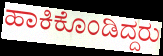
ಹಾಕಿಕೊಂಡಿದ್ದರು